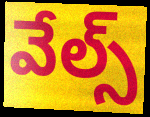
వేల్స్